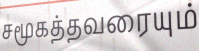
சமூகத்தவரையும்